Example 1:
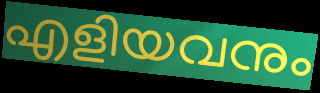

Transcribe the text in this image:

എളിയവനും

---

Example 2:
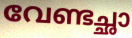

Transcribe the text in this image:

വേണ്ടച്ഛാ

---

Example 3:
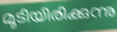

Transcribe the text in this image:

മൂടിയിരിക്കുന്നു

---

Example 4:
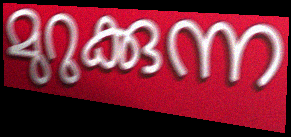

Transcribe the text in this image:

മുറുക്കുന്ന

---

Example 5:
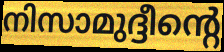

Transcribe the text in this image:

നിസാമുദ്ദീന്റെ